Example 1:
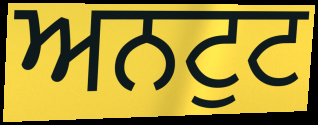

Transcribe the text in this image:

ਅਨਟੁਟ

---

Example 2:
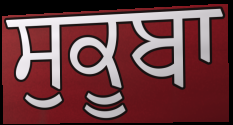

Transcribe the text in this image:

ਸੁਕੂਬਾ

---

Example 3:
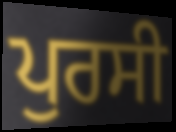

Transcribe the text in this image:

ਪੁਰਸੀ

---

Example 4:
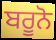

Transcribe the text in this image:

ਬਰੂਨੋ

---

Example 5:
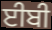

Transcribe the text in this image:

ਈਬੀ